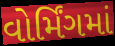
વોર્મિંગમાં